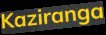
Kaziranga